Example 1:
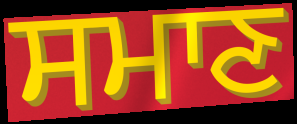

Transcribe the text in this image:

ਸਮਾਣ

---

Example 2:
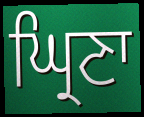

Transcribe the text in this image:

ਘ੍ਰਿਣਾ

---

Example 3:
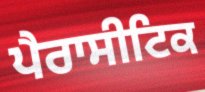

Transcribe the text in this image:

ਪੈਰਾਸੀਟਿਕ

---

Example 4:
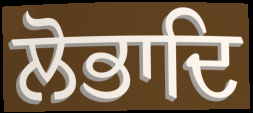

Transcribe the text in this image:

ਲੋਭਾਦਿ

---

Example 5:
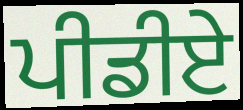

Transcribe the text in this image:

ਪੀਡੀਏ